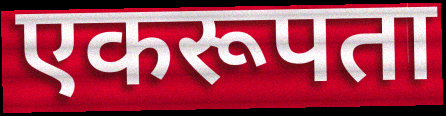
एकरूपता